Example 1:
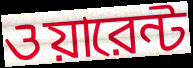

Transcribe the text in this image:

ওয়ারেন্ট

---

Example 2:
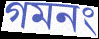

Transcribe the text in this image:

গমনং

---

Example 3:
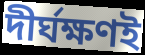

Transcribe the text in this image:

দীর্ঘক্ষণই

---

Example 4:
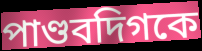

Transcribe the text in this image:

পাণ্ডবদিগকে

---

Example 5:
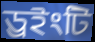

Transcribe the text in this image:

ড্রইংটি